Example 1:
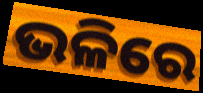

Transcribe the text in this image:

ଭଳିରେ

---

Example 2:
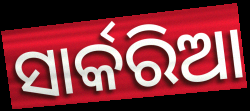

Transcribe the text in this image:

ସାର୍କରିଆ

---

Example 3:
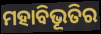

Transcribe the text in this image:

ମହାବିଭୂତିର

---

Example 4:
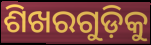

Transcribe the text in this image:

ଶିଖରଗୁଡ଼ିକୁ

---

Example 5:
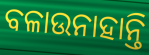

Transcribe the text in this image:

ବଳାଉନାହାନ୍ତି